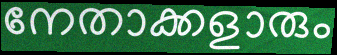
നേതാക്കളാരും